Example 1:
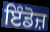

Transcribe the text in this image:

ਇੰਡੋਜ਼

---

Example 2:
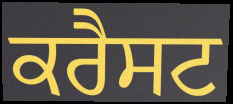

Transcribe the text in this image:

ਕਰੈਸਟ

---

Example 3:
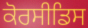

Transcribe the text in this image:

ਕੋਰਸੀਡਿਸ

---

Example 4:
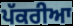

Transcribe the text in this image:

ਪੱਕਰੀਆ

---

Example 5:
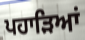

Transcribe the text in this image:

ਪਹਾੜਿਆਂ